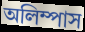
অলিম্পাস